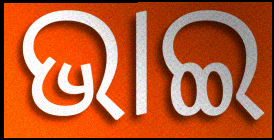
ଭାଇ